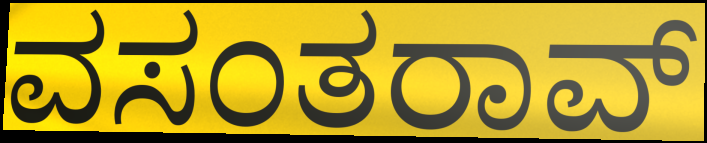
ವಸಂತರಾವ್